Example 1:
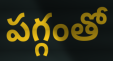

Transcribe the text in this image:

పగ్గంతో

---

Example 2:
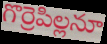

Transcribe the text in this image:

గొర్రెపిల్లనూ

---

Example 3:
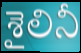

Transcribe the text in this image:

శైలినీ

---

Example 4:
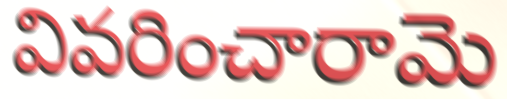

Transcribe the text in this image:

వివరించారామె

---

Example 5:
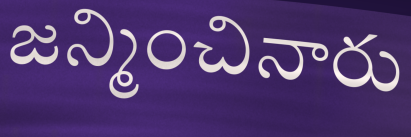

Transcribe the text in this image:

జన్మించినారు